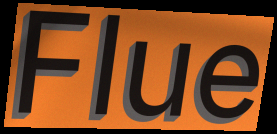
Flue